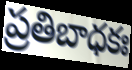
ప్రతిబాధకః